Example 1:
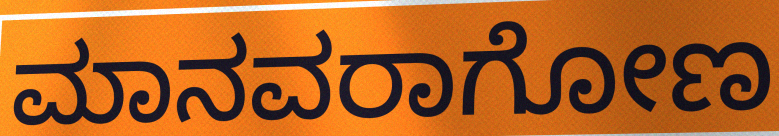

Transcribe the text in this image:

ಮಾನವರಾಗೋಣ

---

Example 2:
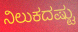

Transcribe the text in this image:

ನಿಲುಕದಷ್ಟು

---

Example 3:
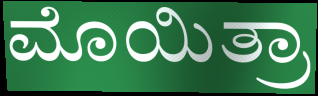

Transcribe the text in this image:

ಮೊಯಿತ್ರಾ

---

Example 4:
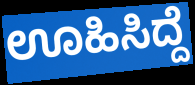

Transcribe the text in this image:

ಊಹಿಸಿದ್ದೆ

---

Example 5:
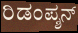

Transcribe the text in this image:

ರಿಡಂಪ್ಶನ್